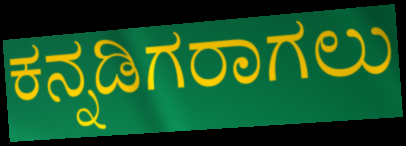
ಕನ್ನಡಿಗರಾಗಲು